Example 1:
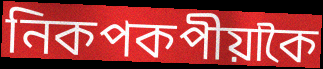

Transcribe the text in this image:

নিকপকপীয়াকৈ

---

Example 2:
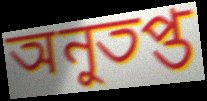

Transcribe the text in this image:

অনুতপ্ত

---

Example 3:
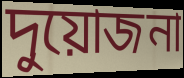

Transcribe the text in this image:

দুয়োজনা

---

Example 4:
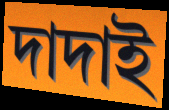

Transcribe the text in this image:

দাদাই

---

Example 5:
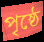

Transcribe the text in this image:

পৃষ্ঠে